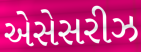
એસેસરીઝ